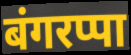
बंगरप्पा